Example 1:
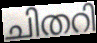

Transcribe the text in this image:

ചിതറി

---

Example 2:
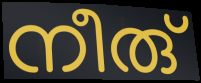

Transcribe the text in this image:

നീരു്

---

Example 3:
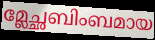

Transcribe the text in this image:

മ്ലേച്ഛബിംബമായ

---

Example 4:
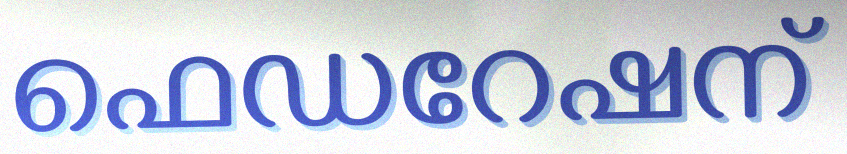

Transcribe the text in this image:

ഫെഡറേഷന്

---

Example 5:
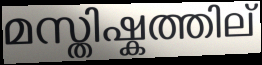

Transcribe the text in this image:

മസ്തിഷ്കത്തില്